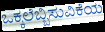
ಒಕ್ಕಲೆಬ್ಬಿಸುವಿಕೆಯ